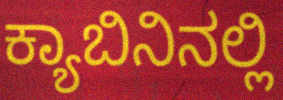
ಕ್ಯಾಬಿನಿನಲ್ಲಿ